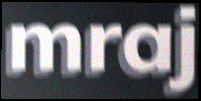
mraj